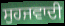
ਸੁਹਜਵਾਦੀ